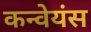
कन्वेयंस